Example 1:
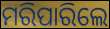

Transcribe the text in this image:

ମରିପାରିଲେ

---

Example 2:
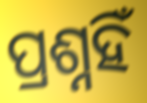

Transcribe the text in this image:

ପ୍ରଶ୍ନହିଁ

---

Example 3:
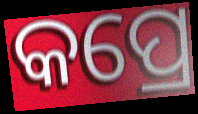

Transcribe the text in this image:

କପ୍ରେ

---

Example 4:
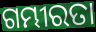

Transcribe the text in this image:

ଗମ୍ଭୀରତା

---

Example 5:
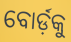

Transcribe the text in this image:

ବୋର୍ଡ଼କୁ